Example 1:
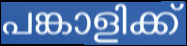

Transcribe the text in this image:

പങ്കാളിക്ക്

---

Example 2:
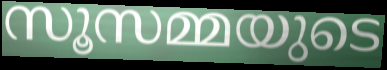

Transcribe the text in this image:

സൂസമ്മയുടെ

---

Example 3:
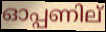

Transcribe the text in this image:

ഓപ്പണില്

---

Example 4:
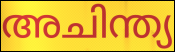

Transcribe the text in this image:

അചിന്ത്യ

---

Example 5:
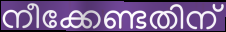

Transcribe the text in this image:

നീക്കേണ്ടതിന്